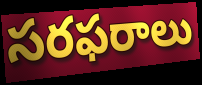
సరఫరాలు